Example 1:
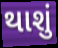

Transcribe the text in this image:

થાશું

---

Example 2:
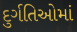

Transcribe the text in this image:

દુર્ગતિઓમાં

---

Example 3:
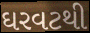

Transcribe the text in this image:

ઘરવટથી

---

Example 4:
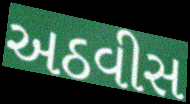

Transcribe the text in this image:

અઠવીસ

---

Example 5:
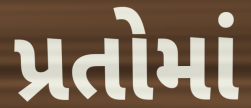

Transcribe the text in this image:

પ્રતોમાં